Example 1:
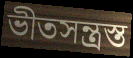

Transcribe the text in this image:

ভীতসন্ত্রস্ত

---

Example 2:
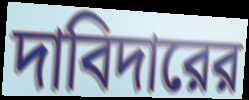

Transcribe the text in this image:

দাবিদারের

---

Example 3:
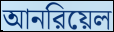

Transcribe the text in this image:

আনরিয়েল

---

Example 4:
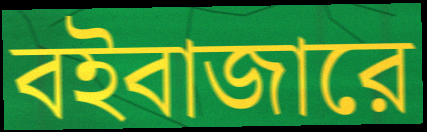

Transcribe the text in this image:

বইবাজারে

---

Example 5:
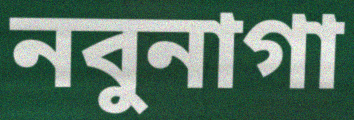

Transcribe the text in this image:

নবুনাগা